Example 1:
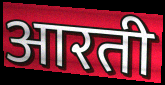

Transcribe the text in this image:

आरती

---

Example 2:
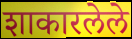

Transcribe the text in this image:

शाकारलेले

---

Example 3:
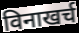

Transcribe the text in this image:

विनाखर्च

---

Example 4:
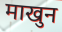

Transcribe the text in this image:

माखुन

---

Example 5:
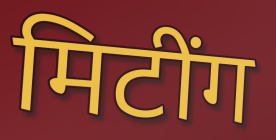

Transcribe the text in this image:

मिटींग